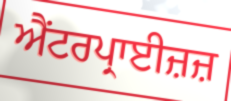
ਐਂਟਰਪ੍ਰਾਈਜ਼ਜ਼